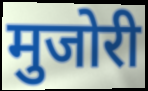
मुजोरी